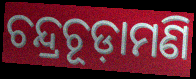
ଚନ୍ଦ୍ରଚୂଡ଼ାମଣି